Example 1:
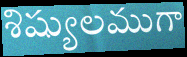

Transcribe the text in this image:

శిష్యులముగా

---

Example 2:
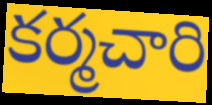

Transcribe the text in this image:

కర్మచారి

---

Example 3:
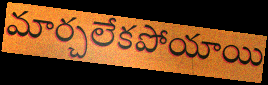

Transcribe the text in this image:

మార్చలేకపోయాయి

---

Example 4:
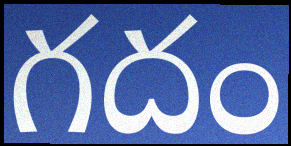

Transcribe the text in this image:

గదం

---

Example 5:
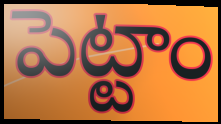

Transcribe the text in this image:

పెట్టాం